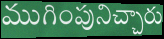
ముగింపునిచ్చారు